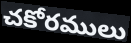
చకోరములు